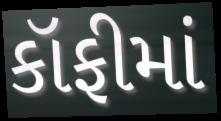
કૉફીમાં